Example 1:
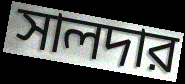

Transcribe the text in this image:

সালদার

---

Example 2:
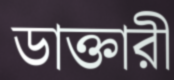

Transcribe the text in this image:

ডাক্তারী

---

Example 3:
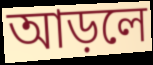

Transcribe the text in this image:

আড়লে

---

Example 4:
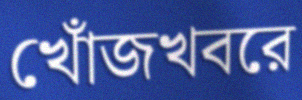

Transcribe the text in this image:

খোঁজখবরে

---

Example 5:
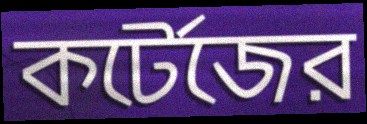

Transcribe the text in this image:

কর্টেজের